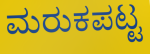
ಮರುಕಪಟ್ಟ